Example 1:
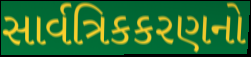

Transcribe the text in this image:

સાર્વત્રિકકરણનો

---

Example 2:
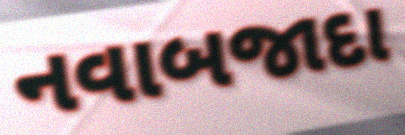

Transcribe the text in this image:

નવાબજાદા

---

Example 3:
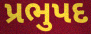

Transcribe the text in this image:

પ્રભુપદ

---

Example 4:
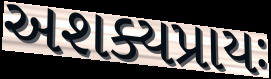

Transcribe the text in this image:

અશક્યપ્રાયઃ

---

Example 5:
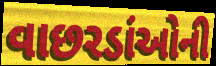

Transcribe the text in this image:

વાછરડાંઓની